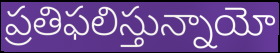
ప్రతిఫలిస్తున్నాయో